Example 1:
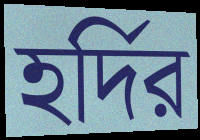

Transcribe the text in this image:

হর্দির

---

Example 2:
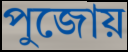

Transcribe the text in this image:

পুজোয়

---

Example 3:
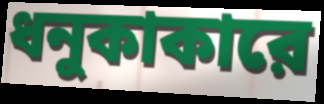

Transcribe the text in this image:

ধনুকাকারে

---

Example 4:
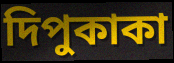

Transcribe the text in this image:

দিপুকাকা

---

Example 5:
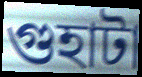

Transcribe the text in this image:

গুহাটা